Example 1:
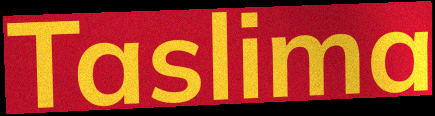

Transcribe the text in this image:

Taslima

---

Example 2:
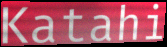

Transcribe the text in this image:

Katahi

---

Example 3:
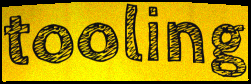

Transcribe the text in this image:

tooling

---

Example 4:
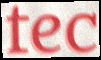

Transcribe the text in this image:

tec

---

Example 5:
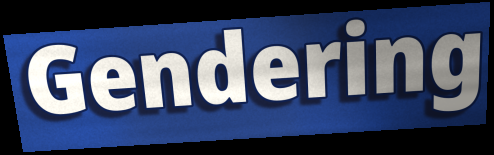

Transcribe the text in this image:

Gendering